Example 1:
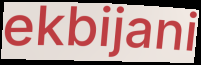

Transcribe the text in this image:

ekbijani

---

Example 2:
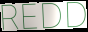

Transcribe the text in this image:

REDD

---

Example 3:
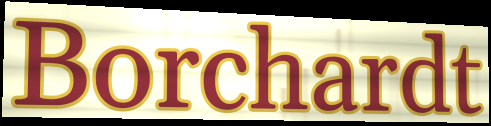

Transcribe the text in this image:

Borchardt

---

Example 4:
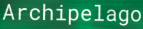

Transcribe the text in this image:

Archipelago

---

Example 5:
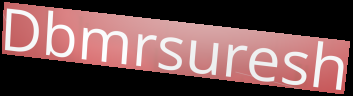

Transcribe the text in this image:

Dbmrsuresh